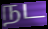
நட